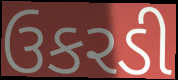
ઉકરડી